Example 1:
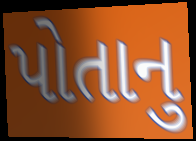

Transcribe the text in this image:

પોતાનુ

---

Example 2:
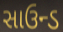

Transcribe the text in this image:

સાઉન્ડ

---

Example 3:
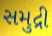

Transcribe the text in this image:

સમુદ્રી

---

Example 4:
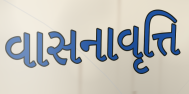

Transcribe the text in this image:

વાસનાવૃત્તિ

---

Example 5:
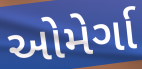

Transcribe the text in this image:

ઓમેર્ગા